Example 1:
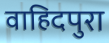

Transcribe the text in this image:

वाहिदपुरा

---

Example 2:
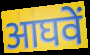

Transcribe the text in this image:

आघवें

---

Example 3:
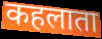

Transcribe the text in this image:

कहलाता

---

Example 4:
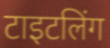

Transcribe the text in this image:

टाइटलिंग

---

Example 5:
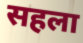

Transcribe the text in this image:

सहला